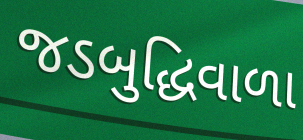
જડબુદ્ધિવાળા